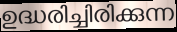
ഉദ്ധരിച്ചിരിക്കുന്ന